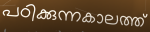
പഠിക്കുന്നകാലത്ത്